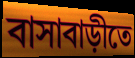
বাসাবাড়ীতে